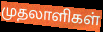
முதலாளிகள்